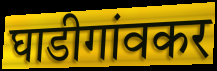
घाडीगांवकर